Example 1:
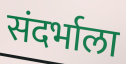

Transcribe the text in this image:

संदर्भाला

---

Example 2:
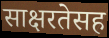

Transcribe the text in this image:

साक्षरतेसह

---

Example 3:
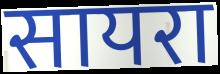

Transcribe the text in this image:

सायरा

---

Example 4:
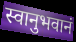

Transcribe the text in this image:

स्वानुभवानं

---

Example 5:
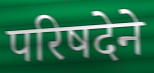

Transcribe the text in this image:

परिषदेने